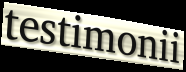
testimonii